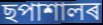
ছপাশালৰ